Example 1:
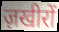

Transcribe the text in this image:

ज़खीरों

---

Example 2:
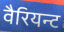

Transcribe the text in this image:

वैरियन्ट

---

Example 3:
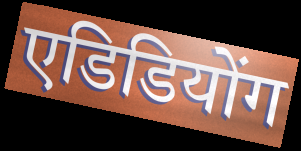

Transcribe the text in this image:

एडिडियोंग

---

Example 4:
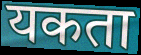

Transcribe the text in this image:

यकता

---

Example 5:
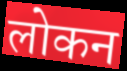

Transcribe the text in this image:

लोकन